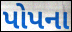
પોપના